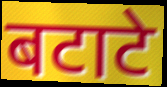
बटाटे